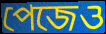
পেজেও